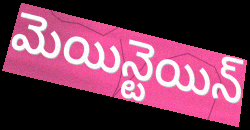
మెయిన్టెయిన్